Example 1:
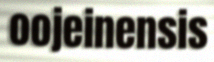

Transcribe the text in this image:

oojeinensis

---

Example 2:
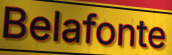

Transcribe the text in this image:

Belafonte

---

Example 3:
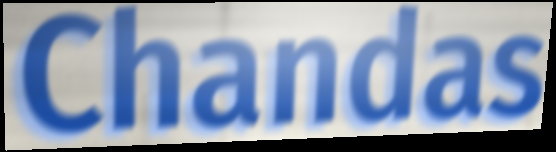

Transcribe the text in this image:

Chandas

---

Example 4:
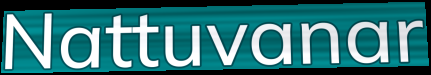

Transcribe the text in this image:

Nattuvanar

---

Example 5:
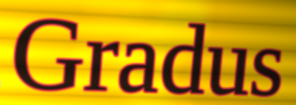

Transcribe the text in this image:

Gradus